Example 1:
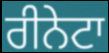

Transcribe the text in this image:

ਰੀਨੇਟਾ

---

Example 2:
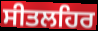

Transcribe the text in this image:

ਸੀਤਲਹਿਰ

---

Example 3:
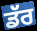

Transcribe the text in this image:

ਡੱਰ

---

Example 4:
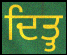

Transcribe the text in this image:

ਦਿਤ੍ਤ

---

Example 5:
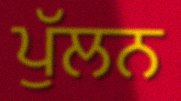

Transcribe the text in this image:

ਪੁੱਲਨ